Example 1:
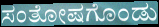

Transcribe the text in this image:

ಸಂತೋಷಗೊಂಡು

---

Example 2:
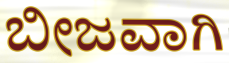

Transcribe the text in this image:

ಬೀಜವಾಗಿ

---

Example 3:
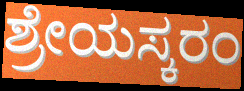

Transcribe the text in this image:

ಶ್ರೇಯಸ್ಕರಂ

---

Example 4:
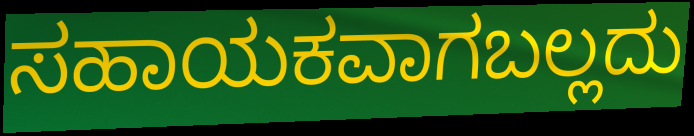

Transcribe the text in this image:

ಸಹಾಯಕವಾಗಬಲ್ಲದು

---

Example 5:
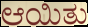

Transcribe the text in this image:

ಆಯಿತು